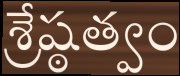
శ్రేష్ఠత్వం